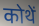
कोथें